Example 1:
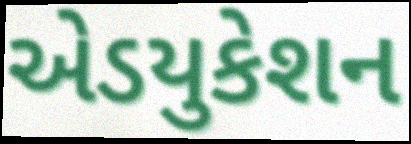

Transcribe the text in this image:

એડયુકેશન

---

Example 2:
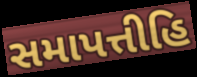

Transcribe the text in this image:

સમાપત્તીહિ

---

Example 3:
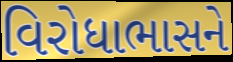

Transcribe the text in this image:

વિરોધાભાસને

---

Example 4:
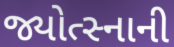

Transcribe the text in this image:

જ્યોત્સ્નાની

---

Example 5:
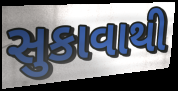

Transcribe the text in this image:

સુકાવાથી